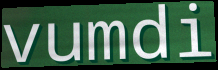
vumdi